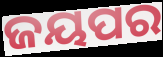
ଜୟପର